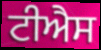
ਟੀਐਸ